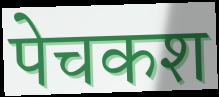
पेचकश